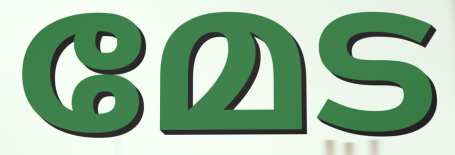
മേട